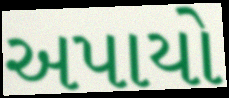
અપાયો